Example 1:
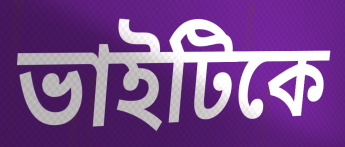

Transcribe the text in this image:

ভাইটিকে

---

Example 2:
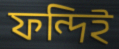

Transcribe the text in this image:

ফন্দিই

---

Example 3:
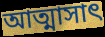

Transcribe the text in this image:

আত্মাসাৎ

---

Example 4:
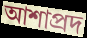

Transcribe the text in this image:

আশাপ্রদ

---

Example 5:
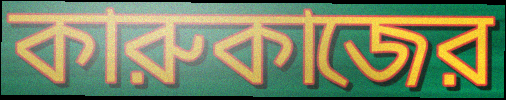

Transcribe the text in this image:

কারুকাজের